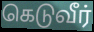
கெடுவீர்